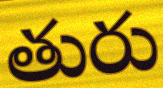
తురు